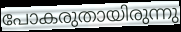
പോകരുതായിരുന്നു